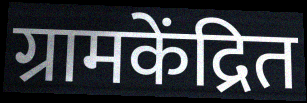
ग्रामकेंद्रित